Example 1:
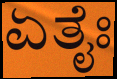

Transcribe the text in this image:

ಏತೈಃ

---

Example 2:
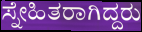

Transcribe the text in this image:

ಸ್ನೇಹಿತರಾಗಿದ್ದರು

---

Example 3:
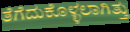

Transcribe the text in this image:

ತೆಗೆದುಕೊಳ್ಳಲಾಗಿತ್ತು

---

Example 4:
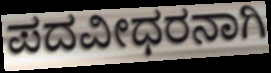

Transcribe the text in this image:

ಪದವೀಧರನಾಗಿ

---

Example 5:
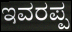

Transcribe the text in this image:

ಇವರಪ್ಪ